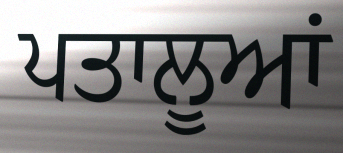
ਪਤਾਲੂਆਂ